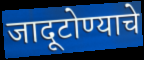
जादूटोण्याचे